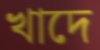
খাদে